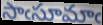
సాఁసూమాఁ